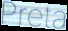
Preta